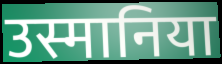
उस्मानिया